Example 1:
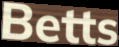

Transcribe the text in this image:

Betts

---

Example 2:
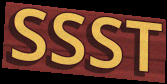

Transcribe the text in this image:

SSST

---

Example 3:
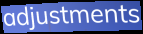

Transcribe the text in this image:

adjustments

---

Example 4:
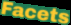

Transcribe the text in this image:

Facets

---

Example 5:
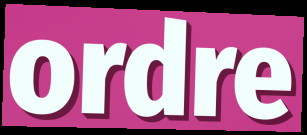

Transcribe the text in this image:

ordre